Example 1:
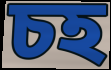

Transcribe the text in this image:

চহ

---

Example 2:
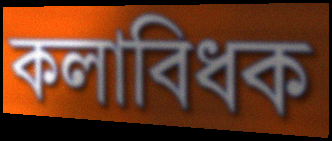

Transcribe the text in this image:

কলাবিধক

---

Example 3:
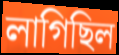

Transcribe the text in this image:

লাগিছিল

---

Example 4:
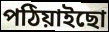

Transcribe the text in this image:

পঠিয়াইছো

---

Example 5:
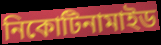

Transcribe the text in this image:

নিকোটিনামাইড